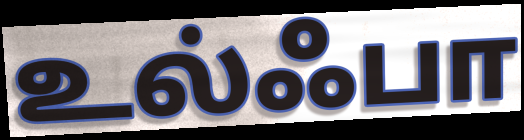
உல்ஃபா